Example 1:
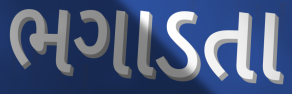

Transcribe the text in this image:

ભગાડતા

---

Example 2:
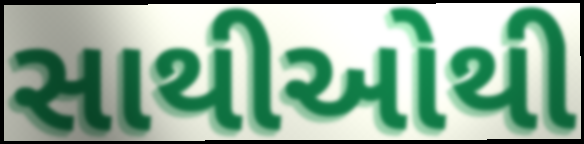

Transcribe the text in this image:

સાથીઓથી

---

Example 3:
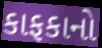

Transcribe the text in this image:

કાફકાનો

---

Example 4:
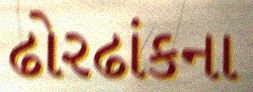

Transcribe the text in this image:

ઢોરઢાંકના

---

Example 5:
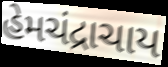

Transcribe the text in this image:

હેમચંદ્રાચાય